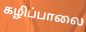
கழிப்பாலை